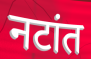
नटांत